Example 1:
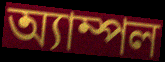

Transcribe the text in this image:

অ্যাম্পল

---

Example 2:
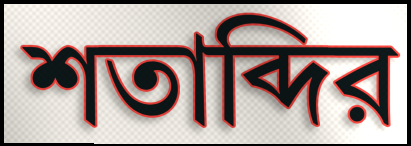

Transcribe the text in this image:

শতাব্দির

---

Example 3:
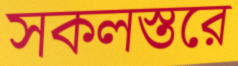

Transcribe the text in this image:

সকলস্তরে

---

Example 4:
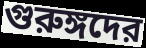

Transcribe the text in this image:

গুরুঙ্গদের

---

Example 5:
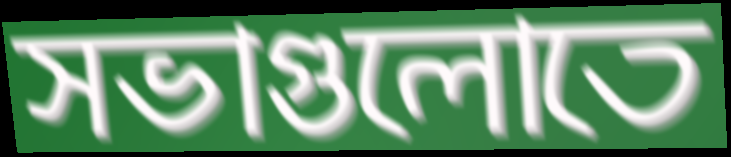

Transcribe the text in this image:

সভাগুলোতে